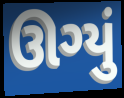
ઊગ્યું